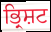
ਭ੍ਰਿਸ਼ਟ